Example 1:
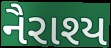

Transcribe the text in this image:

નૈરાશ્ય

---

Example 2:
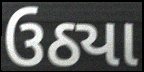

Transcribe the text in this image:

ઉઠ્યા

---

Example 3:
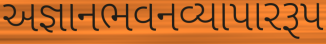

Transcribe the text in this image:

અજ્ઞાનભવનવ્યાપારરૂપ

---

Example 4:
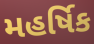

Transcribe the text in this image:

મહર્ષિક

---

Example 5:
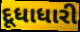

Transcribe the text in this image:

દૂધાધારી